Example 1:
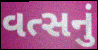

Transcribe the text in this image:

વત્સનું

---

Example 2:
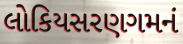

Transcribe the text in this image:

લોકિયસરણગમનં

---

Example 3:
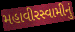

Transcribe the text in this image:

મહાવીરસ્વામીનું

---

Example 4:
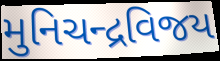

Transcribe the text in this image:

મુનિચન્દ્રવિજય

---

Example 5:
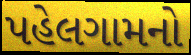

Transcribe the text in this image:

પહેલગામનો